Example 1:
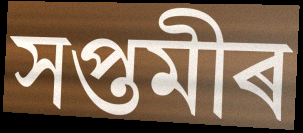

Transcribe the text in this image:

সপ্তমীৰ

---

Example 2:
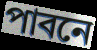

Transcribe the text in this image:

পাবনে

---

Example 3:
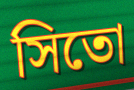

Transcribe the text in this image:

সিতো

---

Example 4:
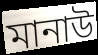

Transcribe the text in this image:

মানাউ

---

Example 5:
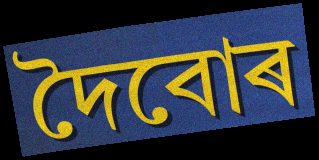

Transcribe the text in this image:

দৈবোৰ